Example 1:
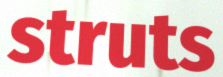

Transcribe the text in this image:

struts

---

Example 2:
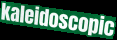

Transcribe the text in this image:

kaleidoscopic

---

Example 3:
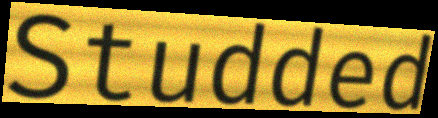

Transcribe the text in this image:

Studded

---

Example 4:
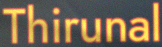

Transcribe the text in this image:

Thirunal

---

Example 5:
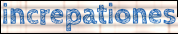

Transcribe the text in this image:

increpationes